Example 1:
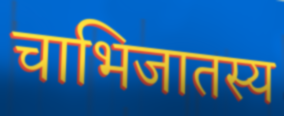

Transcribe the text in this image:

चाभिजातस्य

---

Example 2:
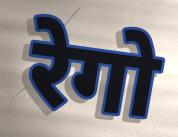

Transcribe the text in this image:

रेगो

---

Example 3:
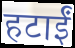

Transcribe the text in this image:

हटाईं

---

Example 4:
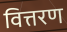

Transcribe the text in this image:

वित्तरण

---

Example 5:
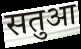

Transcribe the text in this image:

सतुआ